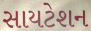
સાયટેશન